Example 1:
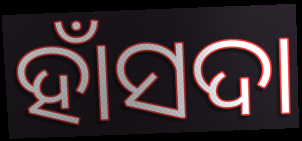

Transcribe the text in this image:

ହାଁସଦା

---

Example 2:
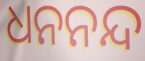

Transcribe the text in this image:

ଧନନନ୍ଦ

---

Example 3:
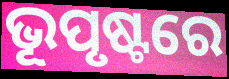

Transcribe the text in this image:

ଭୂପୃଷ୍ଟରେ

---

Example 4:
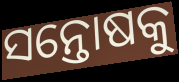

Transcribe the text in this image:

ସନ୍ତୋଷକୁ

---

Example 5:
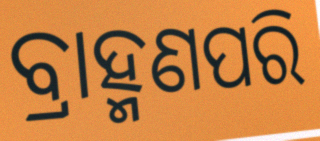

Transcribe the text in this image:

ବ୍ରାହ୍ମଣପରି